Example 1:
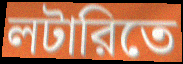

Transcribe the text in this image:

লটারিতে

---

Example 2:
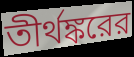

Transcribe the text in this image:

তীর্থঙ্করের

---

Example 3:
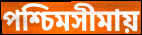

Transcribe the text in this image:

পশ্চিমসীমায়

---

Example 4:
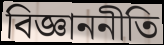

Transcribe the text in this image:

বিজ্ঞাননীতি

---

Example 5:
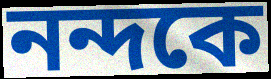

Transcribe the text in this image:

নন্দকে